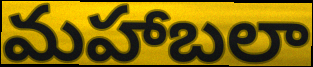
మహాబలా